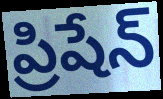
ప్రిషేన్